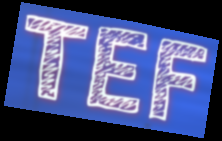
TEF